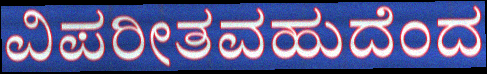
ವಿಪರೀತವಹುದೆಂದ